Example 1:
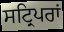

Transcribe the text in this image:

ਸਟ੍ਰਿਪਰਾਂ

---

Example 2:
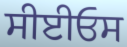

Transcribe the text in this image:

ਸੀਈਓਸ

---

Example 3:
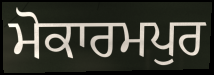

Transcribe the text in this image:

ਮੋਕਾਰਮਪੁਰ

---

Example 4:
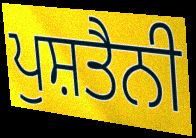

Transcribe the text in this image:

ਪੁਸ਼ਤੈਨੀ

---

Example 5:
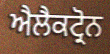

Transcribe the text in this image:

ਐਲੈਕਟ੍ਰੋਨ